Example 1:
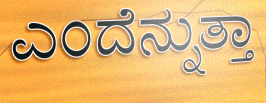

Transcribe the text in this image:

ಎಂದೆನ್ನುತ್ತಾ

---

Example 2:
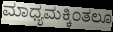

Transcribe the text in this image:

ಮಾಧ್ಯಮಕ್ಕಿಂತಲೂ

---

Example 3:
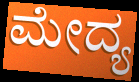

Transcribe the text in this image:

ಮೇದ್ಯ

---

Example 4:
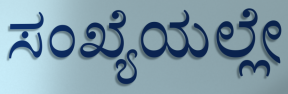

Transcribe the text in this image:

ಸಂಖ್ಯೆಯಲ್ಲೇ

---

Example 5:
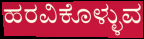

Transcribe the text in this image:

ಹರವಿಕೊಳ್ಳುವ